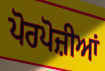
ਪੋਰਪੋਜ਼ੀਆਂ